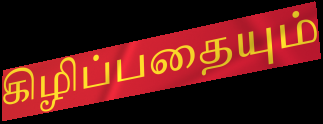
கிழிப்பதையும்